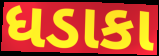
ધડાકા